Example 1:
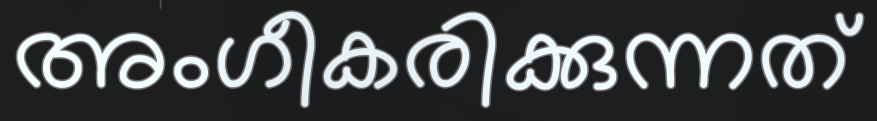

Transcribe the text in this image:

അംഗീകരിക്കുന്നത്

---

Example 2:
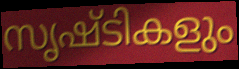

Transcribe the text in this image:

സൃഷ്ടികളും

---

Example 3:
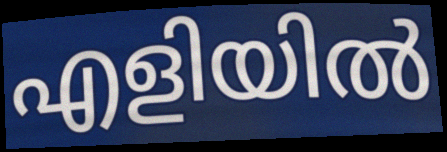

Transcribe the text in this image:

എളിയിൽ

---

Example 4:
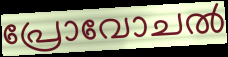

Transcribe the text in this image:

പ്രോവോചൽ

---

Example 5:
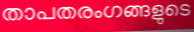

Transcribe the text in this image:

താപതരംഗങ്ങളുടെ